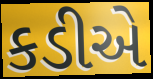
કડીએ